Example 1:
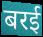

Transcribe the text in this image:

बरई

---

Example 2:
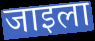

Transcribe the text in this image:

जाइला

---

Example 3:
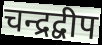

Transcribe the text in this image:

चन्द्रद्वीप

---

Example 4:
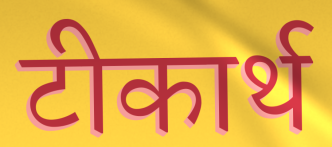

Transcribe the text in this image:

टीकार्थ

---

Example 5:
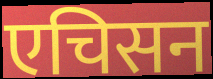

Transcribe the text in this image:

एचिसन